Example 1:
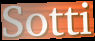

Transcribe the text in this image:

Sotti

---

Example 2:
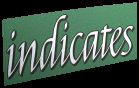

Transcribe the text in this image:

indicates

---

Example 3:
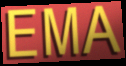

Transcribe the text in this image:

EMA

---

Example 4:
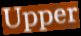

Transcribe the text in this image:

Upper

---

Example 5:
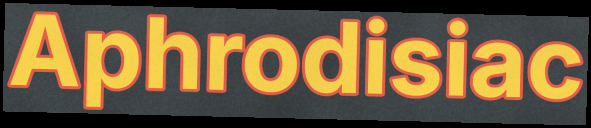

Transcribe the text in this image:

Aphrodisiac